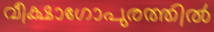
വീക്ഷാഗോപുരത്തിൽ